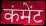
कंमेंट